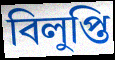
বিলুপ্তি